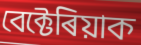
বেক্টেৰিয়াক